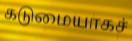
கடுமையாகச்